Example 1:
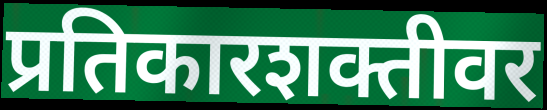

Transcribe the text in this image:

प्रतिकारशक्तीवर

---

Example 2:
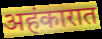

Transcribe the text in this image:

अहंकारात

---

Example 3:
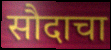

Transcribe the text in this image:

सौदाचा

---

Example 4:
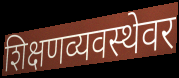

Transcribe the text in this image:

शिक्षणव्यवस्थेवर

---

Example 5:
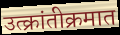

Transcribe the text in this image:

उत्क्रांतीक्रमात